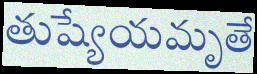
తుష్యేయమృతే